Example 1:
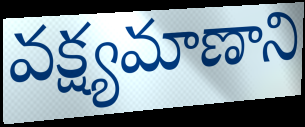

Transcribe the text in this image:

వక్ష్యమాణాని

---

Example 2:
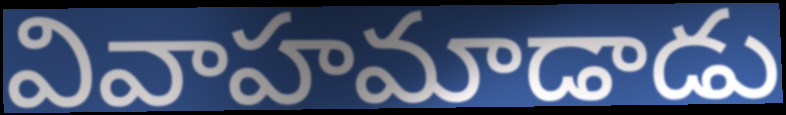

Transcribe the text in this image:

వివాహమాడాడు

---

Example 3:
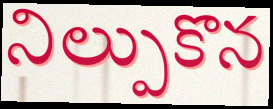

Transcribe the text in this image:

నిల్పుకొన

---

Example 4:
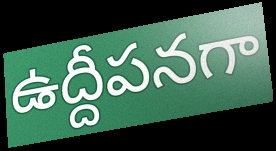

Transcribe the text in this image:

ఉద్దీపనగా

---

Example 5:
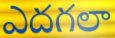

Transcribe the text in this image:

ఎదగలా